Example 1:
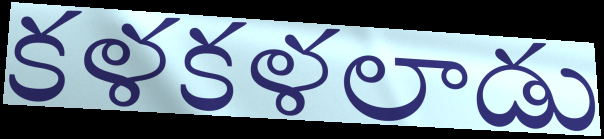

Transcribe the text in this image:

కళకళలాడు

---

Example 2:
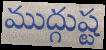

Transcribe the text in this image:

ముద్గుష్ట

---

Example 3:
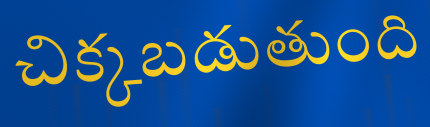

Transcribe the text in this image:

చిక్కబడుతుంది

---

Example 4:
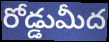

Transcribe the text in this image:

రోడ్డుమీద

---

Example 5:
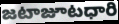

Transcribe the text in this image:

జటాజూటధారి